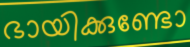
ഭായിക്കുണ്ടോ